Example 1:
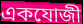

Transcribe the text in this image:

একযোজী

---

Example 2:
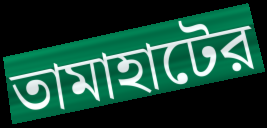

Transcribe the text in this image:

তামাহাটের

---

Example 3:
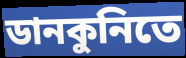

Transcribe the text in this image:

ডানকুনিতে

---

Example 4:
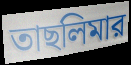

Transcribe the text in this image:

তাছলিমার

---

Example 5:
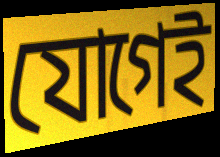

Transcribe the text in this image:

যোগেই